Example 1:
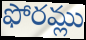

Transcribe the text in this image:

ఫోరమ్లు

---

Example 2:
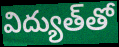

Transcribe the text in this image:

విద్యుత్‌తో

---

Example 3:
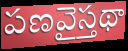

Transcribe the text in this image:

పణవైస్తథా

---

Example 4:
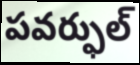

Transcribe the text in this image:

పవర్ఫుల్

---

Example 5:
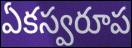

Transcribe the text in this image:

ఏకస్వరూప